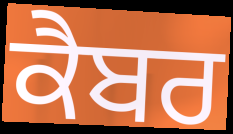
ਕੈਬਰ